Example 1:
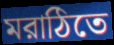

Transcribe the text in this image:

মরাঠিতে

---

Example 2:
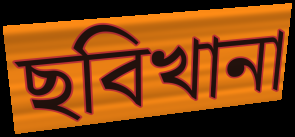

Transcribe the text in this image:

ছবিখানা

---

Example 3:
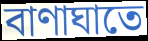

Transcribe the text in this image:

বাণাঘাতে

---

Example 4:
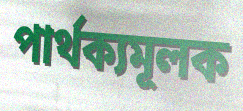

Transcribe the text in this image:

পার্থক্যমূলক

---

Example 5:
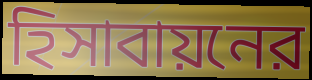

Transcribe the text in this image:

হিসাবায়নের